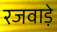
रजवाड़े